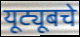
यूट्यूबचे